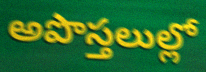
అపొస్తలుల్లో